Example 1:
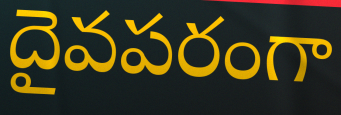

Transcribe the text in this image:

దైవపరంగా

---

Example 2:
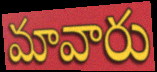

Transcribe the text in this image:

మావారు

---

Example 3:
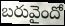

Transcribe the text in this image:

బరువైందో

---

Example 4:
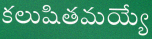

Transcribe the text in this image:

కలుషితమయ్యే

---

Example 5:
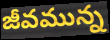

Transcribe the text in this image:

జీవమున్న